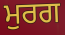
ਮੁਰਗ